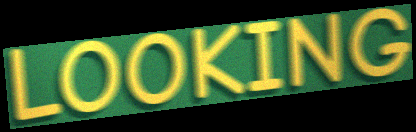
LOOKING